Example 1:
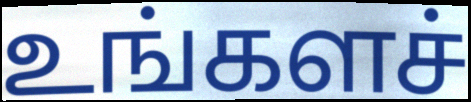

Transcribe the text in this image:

உங்களச்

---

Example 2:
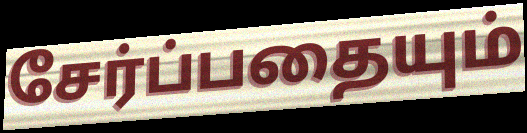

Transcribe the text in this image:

சேர்ப்பதையும்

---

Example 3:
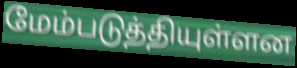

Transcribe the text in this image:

மேம்படுத்தியுள்ளன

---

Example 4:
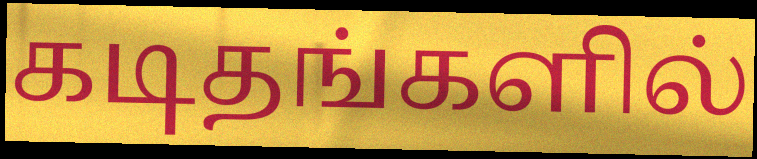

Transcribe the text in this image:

கடிதங்களில்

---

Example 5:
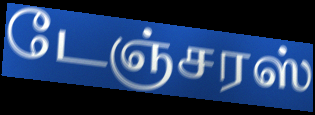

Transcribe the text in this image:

டேஞ்சரஸ்